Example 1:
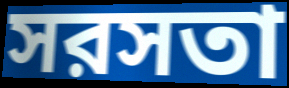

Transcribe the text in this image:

সরসতা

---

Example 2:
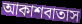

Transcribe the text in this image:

আকাশবাতাস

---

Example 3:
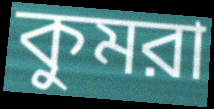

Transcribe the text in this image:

কুমরা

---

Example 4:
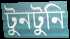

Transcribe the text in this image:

টুনটুনি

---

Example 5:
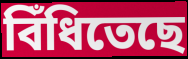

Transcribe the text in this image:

বিঁধিতেছে